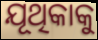
ଯୂଥିକାକୁ